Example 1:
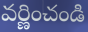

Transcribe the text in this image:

వర్ణించండి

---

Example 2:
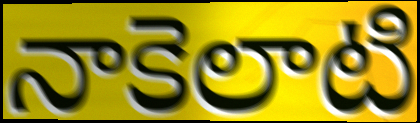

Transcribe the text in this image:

నాకెలాటి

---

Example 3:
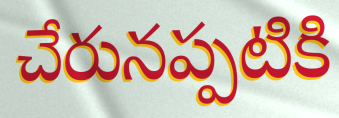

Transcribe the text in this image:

చేరునప్పటికి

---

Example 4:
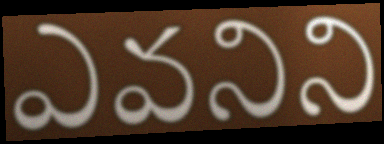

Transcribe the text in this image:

ఎవనిని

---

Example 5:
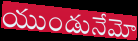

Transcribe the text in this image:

యుండునేమో